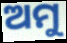
ଅମୁ